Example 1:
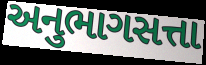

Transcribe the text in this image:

અનુભાગસત્તા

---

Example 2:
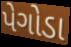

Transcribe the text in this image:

પેગોડા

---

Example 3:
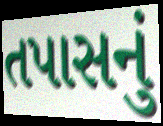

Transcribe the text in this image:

તપાસનું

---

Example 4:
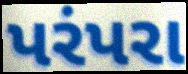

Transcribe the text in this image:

પરંપરા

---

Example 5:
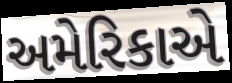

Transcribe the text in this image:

અમેરિકાએ